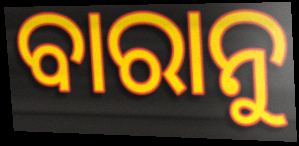
ବାରାନୁ